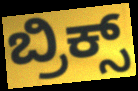
ಬ್ರಿಕ್ಸ್